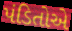
પંડિતોએ